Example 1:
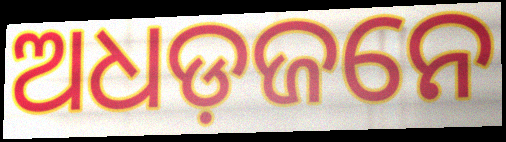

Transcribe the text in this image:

ଅଧଡ଼ଜନେ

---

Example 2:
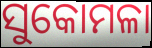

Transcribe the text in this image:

ସୁକୋମଳା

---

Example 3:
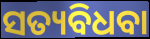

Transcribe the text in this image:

ସତ୍ୟବିଧବା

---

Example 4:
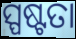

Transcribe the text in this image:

ସ୍ପଷ୍ଟତା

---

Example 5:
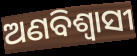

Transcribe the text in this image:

ଅଣବିଶ୍ୱାସୀ